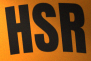
HSR